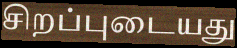
சிறப்புடையது